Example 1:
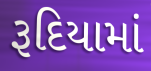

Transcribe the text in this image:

રૂદિયામાં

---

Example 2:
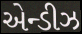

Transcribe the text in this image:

એન્ડીઝ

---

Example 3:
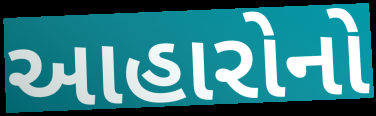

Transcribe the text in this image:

આહારોનો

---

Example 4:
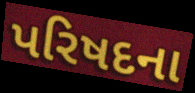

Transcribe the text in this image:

પરિષદના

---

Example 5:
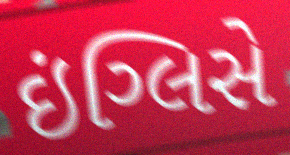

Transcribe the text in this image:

ઇંગ્લિસે